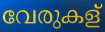
വേരുകള്